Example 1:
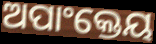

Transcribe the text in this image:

ଅପାଂକ୍ତେୟ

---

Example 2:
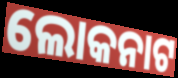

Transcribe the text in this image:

ଲୋକନାଟ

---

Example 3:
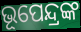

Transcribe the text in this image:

ଭୂପେନ୍ଦ୍ରଙ୍କ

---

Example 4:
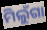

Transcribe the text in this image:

ମିଲୁଁଗା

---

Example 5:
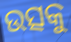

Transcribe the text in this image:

ଉତ୍ସକୁ